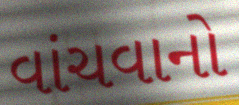
વાંચવાનો